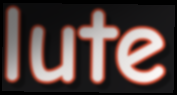
lute